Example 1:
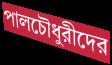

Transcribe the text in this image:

পালচৌধুরীদের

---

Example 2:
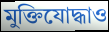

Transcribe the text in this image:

মুক্তিযোদ্ধাও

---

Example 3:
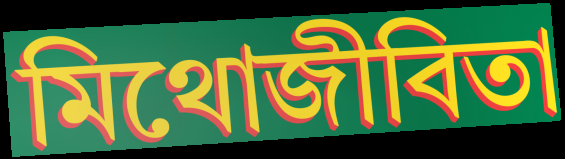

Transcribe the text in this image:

মিথোজীবিতা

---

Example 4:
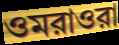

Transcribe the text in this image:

ওমরাওরা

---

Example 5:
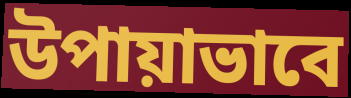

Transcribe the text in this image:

উপায়াভাবে